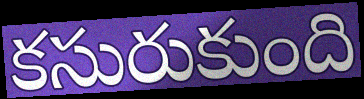
కసురుకుంది